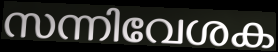
സന്നിവേശക